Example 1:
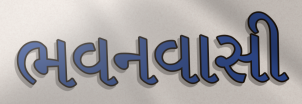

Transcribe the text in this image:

ભવનવાસી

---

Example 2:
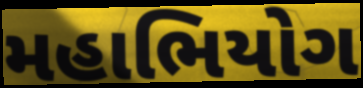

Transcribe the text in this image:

મહાભિયોગ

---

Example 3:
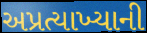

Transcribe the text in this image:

અપ્રત્યાખ્યાની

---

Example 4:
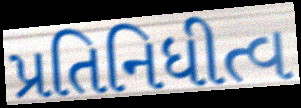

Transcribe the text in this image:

પ્રતિનિધીત્વ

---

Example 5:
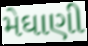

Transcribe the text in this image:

મેઘાણી